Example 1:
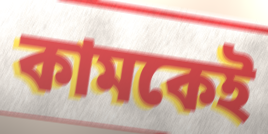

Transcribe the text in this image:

কামকেই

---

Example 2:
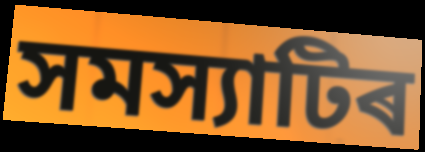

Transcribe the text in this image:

সমস্যাটিৰ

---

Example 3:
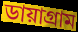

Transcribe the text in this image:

ডায়াগ্ৰাম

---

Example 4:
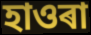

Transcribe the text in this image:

হাওৰা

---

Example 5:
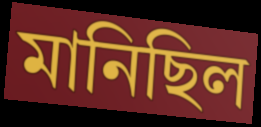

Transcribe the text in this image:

মানিছিল